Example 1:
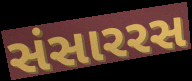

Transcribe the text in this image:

સંસારરસ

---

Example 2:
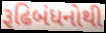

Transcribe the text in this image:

રૂઢિબંધનોથી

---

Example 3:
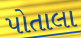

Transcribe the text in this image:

પોતાલા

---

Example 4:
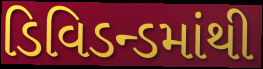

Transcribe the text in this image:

ડિવિડન્ડમાંથી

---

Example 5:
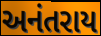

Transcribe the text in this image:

અનંતરાય